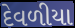
દેવળીયા